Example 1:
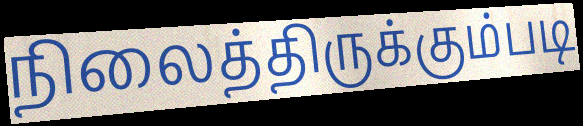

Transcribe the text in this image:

நிலைத்திருக்கும்படி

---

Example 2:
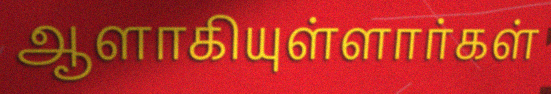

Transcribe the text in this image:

ஆளாகியுள்ளார்கள்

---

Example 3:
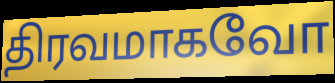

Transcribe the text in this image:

திரவமாகவோ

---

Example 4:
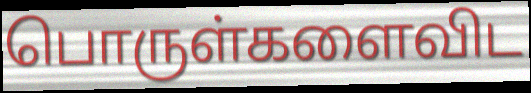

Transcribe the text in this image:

பொருள்களைவிட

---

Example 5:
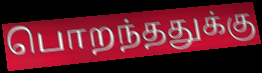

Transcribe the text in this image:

பொறந்ததுக்கு